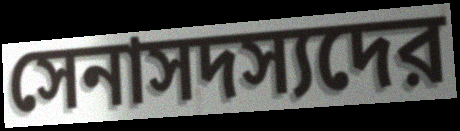
সেনাসদস্যদের